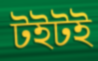
টইটই